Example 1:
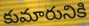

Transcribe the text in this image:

కుమారునికి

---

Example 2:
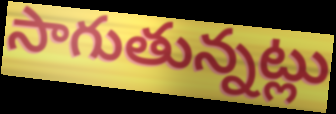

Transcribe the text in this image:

సాగుతున్నట్లు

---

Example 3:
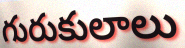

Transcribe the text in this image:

గురుకులాలు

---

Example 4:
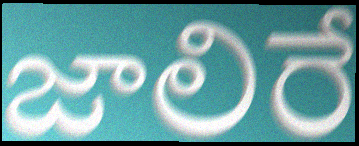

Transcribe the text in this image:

జాలిరే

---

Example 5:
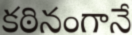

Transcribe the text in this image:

కఠినంగానే